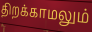
திறக்காமலும்